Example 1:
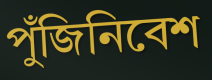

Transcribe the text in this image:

পুঁজিনিবেশ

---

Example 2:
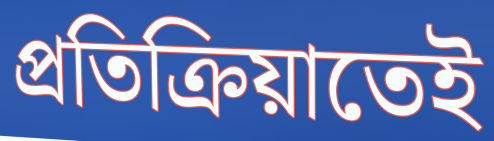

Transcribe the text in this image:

প্রতিক্রিয়াতেই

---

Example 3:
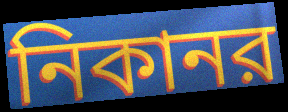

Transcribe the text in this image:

নিকানর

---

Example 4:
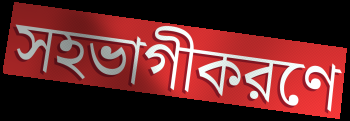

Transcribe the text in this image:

সহভাগীকরণে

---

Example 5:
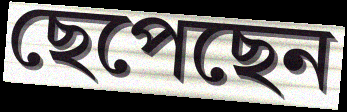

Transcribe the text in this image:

ছেপেছেন